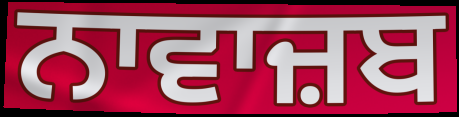
ਨਾਵਾਜ਼ਬ